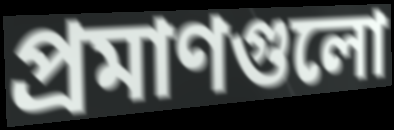
প্রমাণগুলো